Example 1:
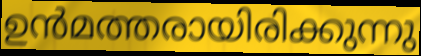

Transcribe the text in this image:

ഉൻമത്തരായിരിക്കുന്നു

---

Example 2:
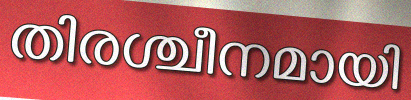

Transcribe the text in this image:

തിരശ്ചീനമായി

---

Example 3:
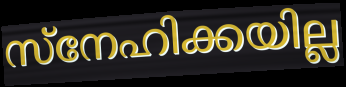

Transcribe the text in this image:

സ്നേഹിക്കയില്ല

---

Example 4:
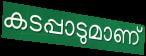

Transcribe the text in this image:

കടപ്പാടുമാണ്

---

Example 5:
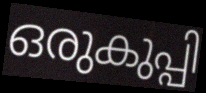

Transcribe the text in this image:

ഒരുകുപ്പി